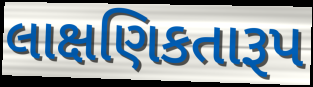
લાક્ષણિકતારૂપ